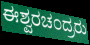
ಈಶ್ವರಚಂದ್ರರು